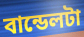
বান্ডেলটা